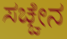
ಸಚ್ಚೇನ